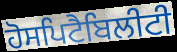
ਹੋਸਪਿਟੈਬਿਲੀਟੀ